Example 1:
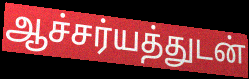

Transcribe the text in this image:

ஆச்சர்யத்துடன்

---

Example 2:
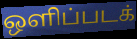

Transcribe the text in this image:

ஒளிப்படக்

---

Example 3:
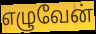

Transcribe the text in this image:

எழுவேன்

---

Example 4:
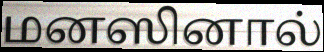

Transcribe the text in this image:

மனஸினால்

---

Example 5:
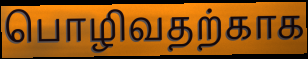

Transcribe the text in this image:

பொழிவதற்காக